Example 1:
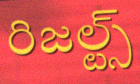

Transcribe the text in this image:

రిజల్ట్స్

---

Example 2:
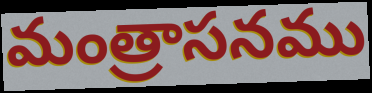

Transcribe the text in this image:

మంత్రాసనము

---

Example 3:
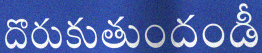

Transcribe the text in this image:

దొరుకుతుందండీ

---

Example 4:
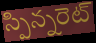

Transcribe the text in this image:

స్పిన్నరెట్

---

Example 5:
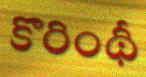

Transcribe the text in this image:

కొరింథీ